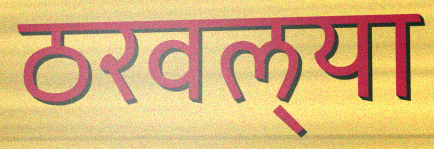
ठरवल्या